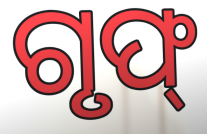
ଗୃଫ୍